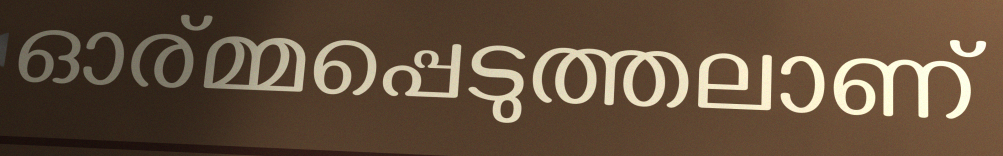
ഓര്മ്മപ്പെടുത്തലാണ്